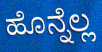
ಹೊನ್ನೆಲ್ಲ